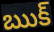
ఋక్